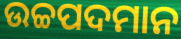
ଉଚ୍ଚପଦମାନ